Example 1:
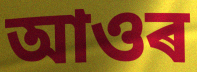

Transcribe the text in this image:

আওৰ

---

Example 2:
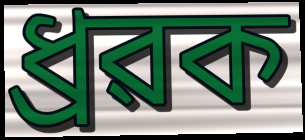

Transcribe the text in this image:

ধ্ৰৱক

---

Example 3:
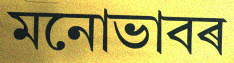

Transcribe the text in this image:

মনোভাবৰ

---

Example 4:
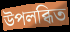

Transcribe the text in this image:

উপলব্ধিত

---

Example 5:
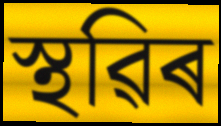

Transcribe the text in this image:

স্থৱিৰ